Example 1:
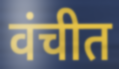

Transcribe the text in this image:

वंचीत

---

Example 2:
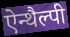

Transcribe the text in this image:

ऐन्थैल्पी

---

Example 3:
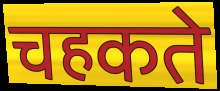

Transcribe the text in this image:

चहकते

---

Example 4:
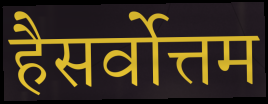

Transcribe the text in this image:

हैसर्वोत्तम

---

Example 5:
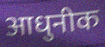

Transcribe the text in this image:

आधुनीक